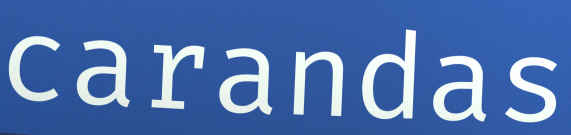
carandas